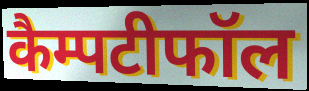
कैम्पटीफॉल